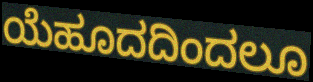
ಯೆಹೂದದಿಂದಲೂ